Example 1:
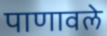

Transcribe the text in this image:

पाणावले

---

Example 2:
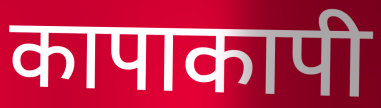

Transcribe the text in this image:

कापाकापी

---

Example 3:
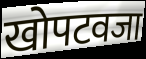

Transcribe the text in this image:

खोपटवजा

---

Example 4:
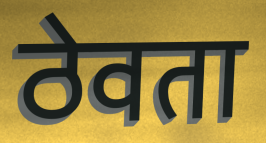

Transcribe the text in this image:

ठेवता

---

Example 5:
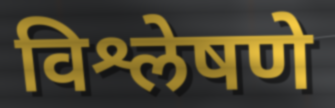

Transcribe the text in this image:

विश्लेषणे